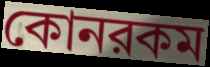
কোনরকম